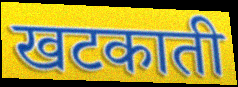
खटकाती